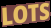
LOTS